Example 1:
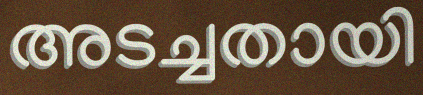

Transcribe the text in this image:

അടച്ചതായി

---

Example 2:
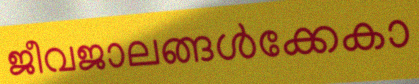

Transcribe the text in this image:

ജീവജാലങ്ങൾക്കേകാ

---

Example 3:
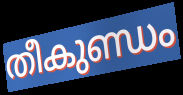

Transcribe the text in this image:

തീകുണ്ഡം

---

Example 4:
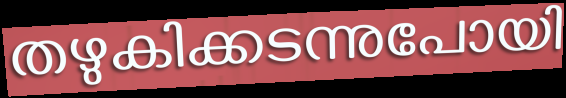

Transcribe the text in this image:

തഴുകിക്കടന്നുപോയി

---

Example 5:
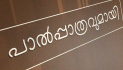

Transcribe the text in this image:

പാൽപ്പാത്രവുമായി